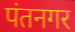
पंतनगर